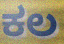
ಕಲ